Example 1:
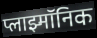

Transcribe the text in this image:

प्लाझ्मॉनिक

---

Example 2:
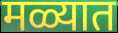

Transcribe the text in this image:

मळ्यात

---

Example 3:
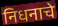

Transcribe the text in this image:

निधनाचे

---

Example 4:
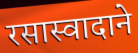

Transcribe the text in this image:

रसास्वादाने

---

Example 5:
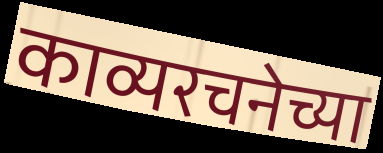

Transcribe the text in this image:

काव्यरचनेच्या